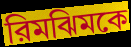
রিমঝিমকে